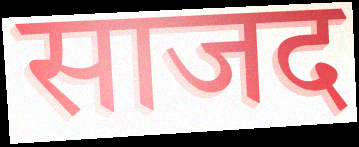
साजद